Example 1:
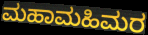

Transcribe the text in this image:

ಮಹಾಮಹಿಮರ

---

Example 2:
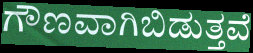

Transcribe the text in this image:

ಗೌಣವಾಗಿಬಿಡುತ್ತವೆ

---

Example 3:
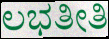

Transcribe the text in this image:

ಲಭತೀತಿ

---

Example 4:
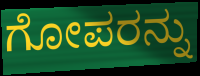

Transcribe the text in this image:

ಗೋಪರನ್ನು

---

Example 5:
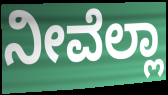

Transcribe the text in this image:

ನೀವೆಲ್ಲಾ